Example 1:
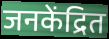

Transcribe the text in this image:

जनकेंद्रित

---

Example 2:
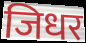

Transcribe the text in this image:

जिधर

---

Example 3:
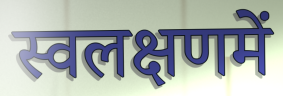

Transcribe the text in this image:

स्वलक्षणमें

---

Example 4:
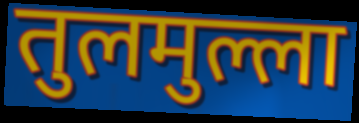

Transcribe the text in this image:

तुलमुल्ला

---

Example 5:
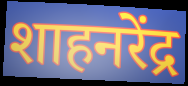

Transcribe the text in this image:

शाहनरेंद्र